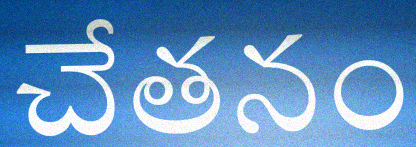
చేతనం